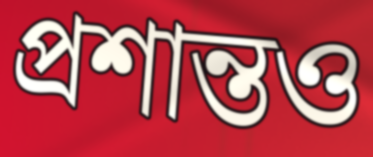
প্রশান্তও